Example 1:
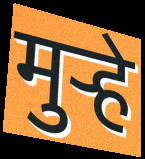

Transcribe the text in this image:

मुऱ्हे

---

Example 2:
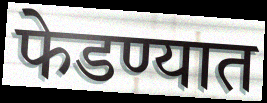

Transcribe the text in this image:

फेडण्यात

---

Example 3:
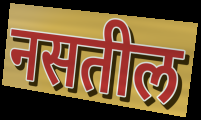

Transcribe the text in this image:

नसतील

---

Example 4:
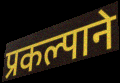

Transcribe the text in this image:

प्रकल्पाने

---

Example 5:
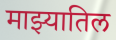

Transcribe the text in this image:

माझ्यातिल